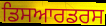
ਡਿਸਆਰਡਰਸ